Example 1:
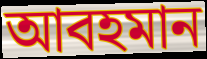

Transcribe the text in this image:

আবহমান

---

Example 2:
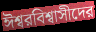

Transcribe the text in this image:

ঈশ্বরবিশ্বাসীদের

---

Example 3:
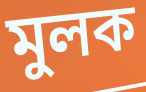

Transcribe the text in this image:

মুলক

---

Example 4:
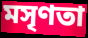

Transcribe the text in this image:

মসৃণতা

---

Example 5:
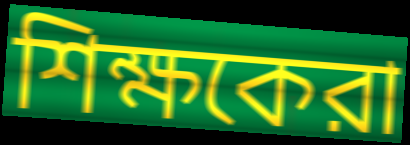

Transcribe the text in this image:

শিক্ষকেরা